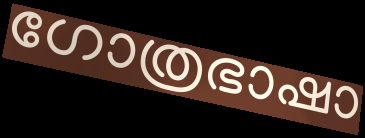
ഗോത്രഭാഷാ